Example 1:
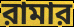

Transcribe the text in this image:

রামার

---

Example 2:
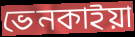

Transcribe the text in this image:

ভেনকাইয়া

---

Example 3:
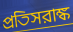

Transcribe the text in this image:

প্রতিসরাঙ্ক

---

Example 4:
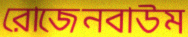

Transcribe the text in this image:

রোজেনবাউম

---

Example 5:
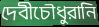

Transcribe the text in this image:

দেবীচৌধুরানি